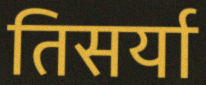
तिसर्या